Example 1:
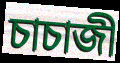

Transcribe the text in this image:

চাচাজী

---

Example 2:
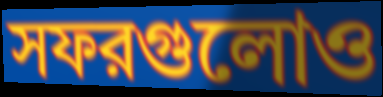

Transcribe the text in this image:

সফরগুলোও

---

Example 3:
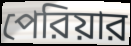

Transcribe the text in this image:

পেরিয়ার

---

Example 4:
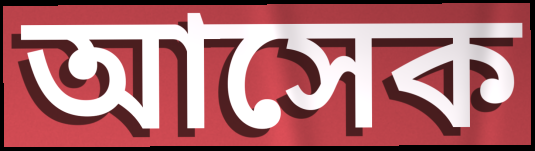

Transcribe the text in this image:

আসেক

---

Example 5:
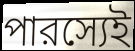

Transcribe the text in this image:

পারস্যেই